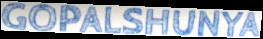
GOPALSHUNYA